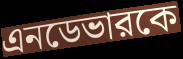
এনডেভারকে